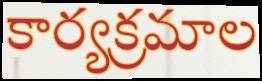
కార్యక్రమాల